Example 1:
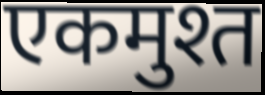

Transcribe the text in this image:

एकमुश्त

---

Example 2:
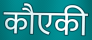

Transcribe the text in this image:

कौएकी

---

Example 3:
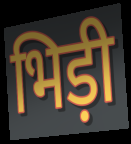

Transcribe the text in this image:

भिड़ी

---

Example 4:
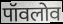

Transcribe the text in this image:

पॉवलोव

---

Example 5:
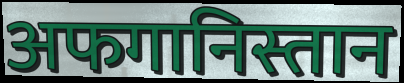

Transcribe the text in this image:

अफगानिस्तान